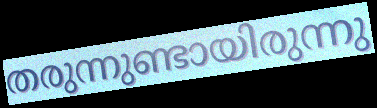
തരുന്നുണ്ടായിരുന്നു